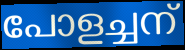
പോളച്ചന്